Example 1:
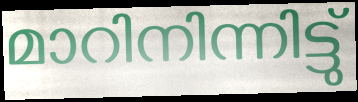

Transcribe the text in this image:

മാറിനിന്നിട്ടു്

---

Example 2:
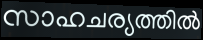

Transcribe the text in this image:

സാഹചര്യത്തിൽ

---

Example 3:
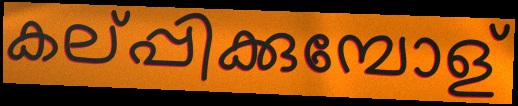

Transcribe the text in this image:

കല്പ്പിക്കുമ്പോള്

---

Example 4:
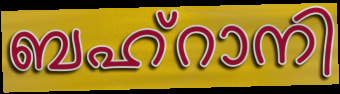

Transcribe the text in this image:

ബഹ്റാനി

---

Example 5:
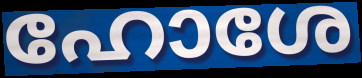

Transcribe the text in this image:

ഹോശേ